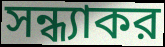
সন্ধ্যাকর